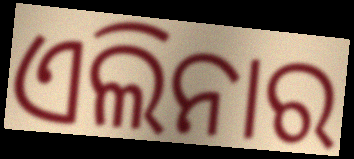
ଏଲିନାର